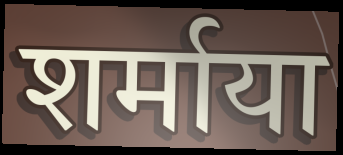
शर्माया